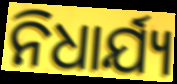
ନିଧାର୍ଯ୍ୟ